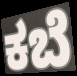
ಕಬೆ